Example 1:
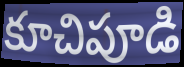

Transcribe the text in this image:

కూచిపూడి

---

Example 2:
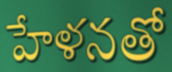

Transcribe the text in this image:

హేళనతో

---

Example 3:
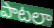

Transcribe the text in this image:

పాటలా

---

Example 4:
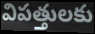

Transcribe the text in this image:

విపత్తులకు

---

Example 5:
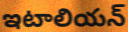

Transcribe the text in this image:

ఇటాలియన్